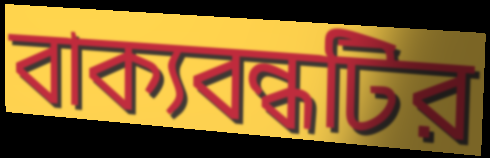
বাক্যবন্ধটির